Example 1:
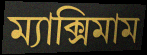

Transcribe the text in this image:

ম্যাক্সিমাম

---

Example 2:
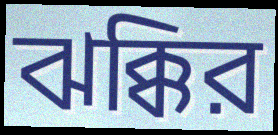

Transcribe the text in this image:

ঝক্কির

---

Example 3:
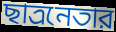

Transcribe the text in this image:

ছাত্রনেতার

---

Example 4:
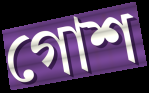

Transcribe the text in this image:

গোশ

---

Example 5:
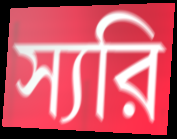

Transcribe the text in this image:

স্যরি